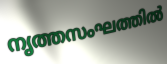
നൃത്തസംഘത്തിൽ